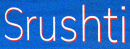
Srushti